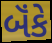
બૅંકે